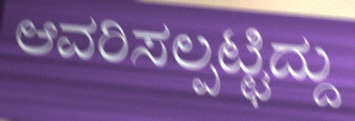
ಆವರಿಸಲ್ಪಟ್ಟಿದ್ದು